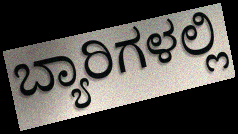
ಬ್ಯಾರಿಗಳಲ್ಲಿ